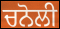
ਚਨੋਲੀ